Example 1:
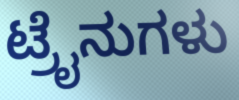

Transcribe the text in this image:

ಟ್ರೈನುಗಳು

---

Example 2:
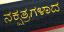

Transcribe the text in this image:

ನಕ್ಷತ್ರಗಳಾದ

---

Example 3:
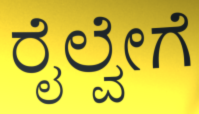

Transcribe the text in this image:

ರೈಲ್ವೇಗೆ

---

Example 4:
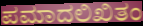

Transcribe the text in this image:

ಪಮಾದಲಿಖಿತಂ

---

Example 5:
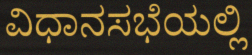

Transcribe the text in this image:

ವಿಧಾನಸಭೆಯಲ್ಲಿ